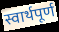
स्वार्थपूर्ण